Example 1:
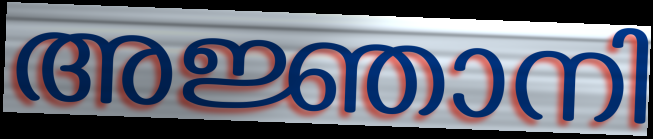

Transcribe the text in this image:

അജ്ഞാനി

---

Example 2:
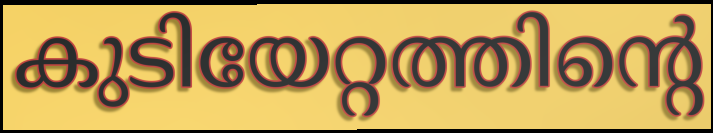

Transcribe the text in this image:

കുടിയേറ്റത്തിന്റെ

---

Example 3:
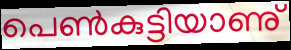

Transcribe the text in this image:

പെൺകുട്ടിയാണു്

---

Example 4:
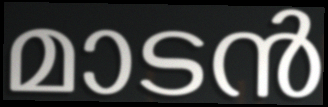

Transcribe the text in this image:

മാടൻ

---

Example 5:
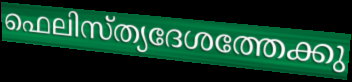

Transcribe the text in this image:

ഫെലിസ്ത്യദേശത്തേക്കു